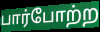
பார்போற்ற